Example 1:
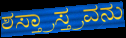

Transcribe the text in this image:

ಶಸ್ತ್ರಾಸ್ತ್ರವನು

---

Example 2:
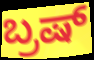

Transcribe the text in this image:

ಬ್ರಷ್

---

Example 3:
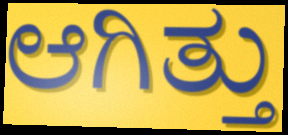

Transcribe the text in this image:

ಆಗಿತ್ತು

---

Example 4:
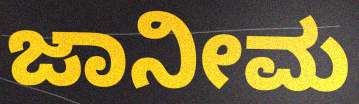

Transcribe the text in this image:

ಜಾನೀಮ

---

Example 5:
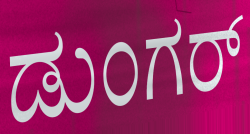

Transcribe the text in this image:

ಡುಂಗರ್